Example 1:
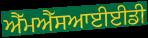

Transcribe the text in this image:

ਐੱਮਐੱਸਆਈਈਡੀ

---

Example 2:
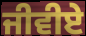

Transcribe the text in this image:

ਜੀਵੀਏ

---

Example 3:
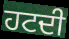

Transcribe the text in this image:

ਹਟਦੀ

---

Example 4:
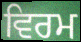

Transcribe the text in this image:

ਵਿਰਮ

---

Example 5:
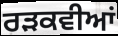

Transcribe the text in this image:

ਰੜਕਵੀਆਂ